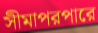
সীমাপরপারে